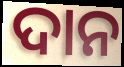
ଦାନ